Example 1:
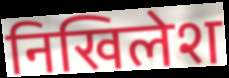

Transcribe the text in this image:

निखिलेश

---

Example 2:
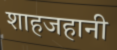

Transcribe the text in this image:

शाहजहानी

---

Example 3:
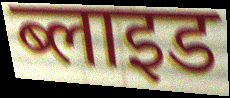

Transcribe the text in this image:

ब्लाइड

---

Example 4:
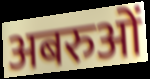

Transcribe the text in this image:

अबरुओं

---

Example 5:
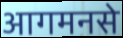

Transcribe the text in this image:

आगमनसे